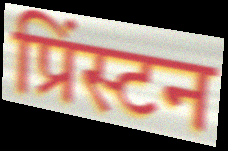
प्रिंस्टन